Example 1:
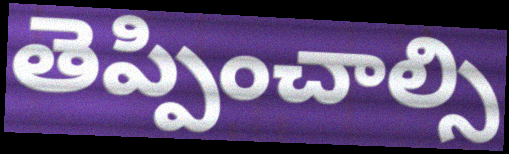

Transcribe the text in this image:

తెప్పించాల్సి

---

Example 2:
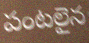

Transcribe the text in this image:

పంటలైన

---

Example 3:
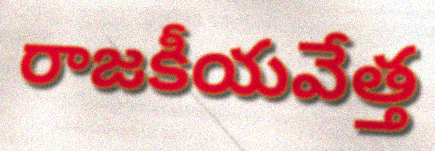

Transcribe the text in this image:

రాజకీయవేత్త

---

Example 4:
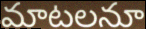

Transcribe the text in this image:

మాటలనూ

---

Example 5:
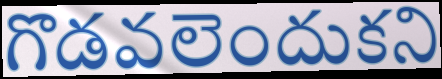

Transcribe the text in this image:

గొడవలెందుకని